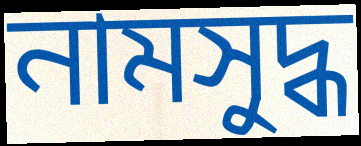
নামসুদ্ধ